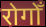
रोगोँ